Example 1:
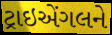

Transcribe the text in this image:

ટ્રાઇએંગલને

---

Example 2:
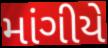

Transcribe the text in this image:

માંગીયે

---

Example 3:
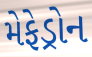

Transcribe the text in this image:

મેફેડ્રોન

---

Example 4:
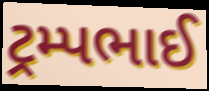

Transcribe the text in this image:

ટ્રમ્પભાઈ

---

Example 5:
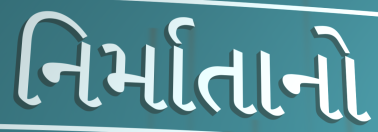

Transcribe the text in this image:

નિર્માતાનો